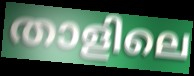
താളിലെ